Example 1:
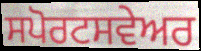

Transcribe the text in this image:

ਸਪੋਰਟਸਵੇਅਰ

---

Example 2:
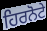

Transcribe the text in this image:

ਹਿਰਨੋਟੇ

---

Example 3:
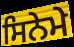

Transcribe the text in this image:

ਸਿਨੇਮੇ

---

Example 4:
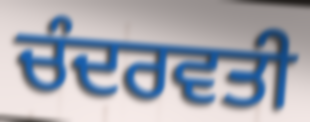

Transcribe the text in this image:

ਚੰਦਰਵਤੀ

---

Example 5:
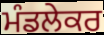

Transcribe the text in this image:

ਮੰਡਲੇਕਰ